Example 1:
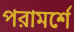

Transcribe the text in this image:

পরামর্শে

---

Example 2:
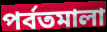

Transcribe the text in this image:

পর্বতমালা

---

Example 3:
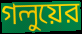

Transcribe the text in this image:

গলুয়ের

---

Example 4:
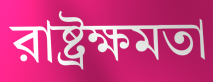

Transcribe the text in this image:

রাষ্ট্রক্ষমতা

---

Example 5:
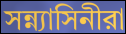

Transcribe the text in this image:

সন্ন্যাসিনীরা